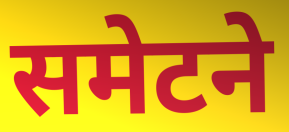
समेटने